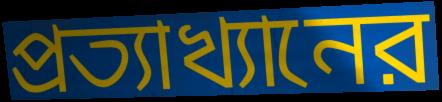
প্রত্যাখ্যানের